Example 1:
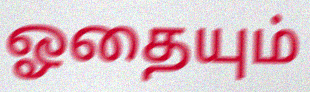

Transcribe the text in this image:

ஓதையும்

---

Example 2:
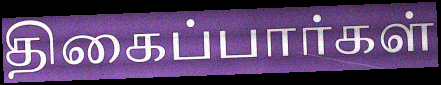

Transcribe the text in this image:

திகைப்பார்கள்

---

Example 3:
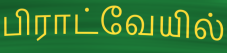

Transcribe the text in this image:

பிராட்வேயில்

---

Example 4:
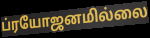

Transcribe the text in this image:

ப்ரயோஜனமில்லை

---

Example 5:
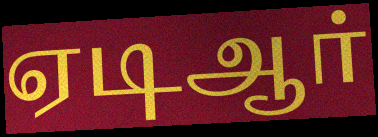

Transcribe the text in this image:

ஏடிஆர்